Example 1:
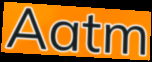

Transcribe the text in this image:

Aatm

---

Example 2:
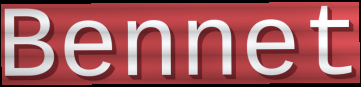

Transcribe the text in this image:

Bennet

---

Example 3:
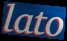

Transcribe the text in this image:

lato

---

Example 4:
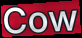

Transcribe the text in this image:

Cow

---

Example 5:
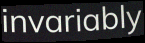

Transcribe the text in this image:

invariably